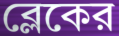
ব্লেকের